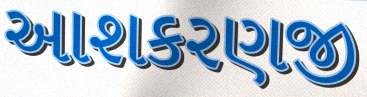
આશકરણજી